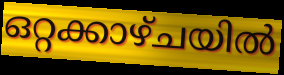
ഒറ്റക്കാഴ്ചയിൽ